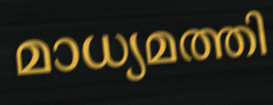
മാധ്യമത്തി